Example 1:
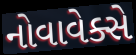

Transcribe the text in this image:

નોવાવેક્સે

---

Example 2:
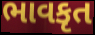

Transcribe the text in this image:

ભાવકૃત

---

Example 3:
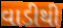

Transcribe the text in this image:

વાડીથી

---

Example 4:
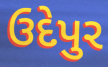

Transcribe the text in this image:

ઉદેપુર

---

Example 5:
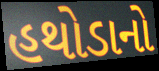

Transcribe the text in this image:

હથોડાનો